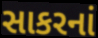
સાકરનાં